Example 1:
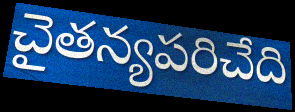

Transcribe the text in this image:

చైతన్యపరిచేది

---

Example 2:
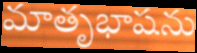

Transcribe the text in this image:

మాతృభాషను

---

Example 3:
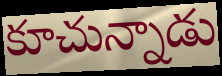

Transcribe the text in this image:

కూచున్నాడు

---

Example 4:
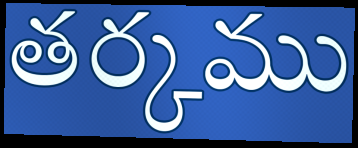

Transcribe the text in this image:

తర్కము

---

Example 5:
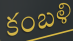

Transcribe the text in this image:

కంబళి